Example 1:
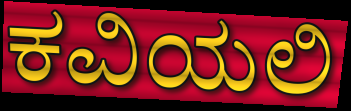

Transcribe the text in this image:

ಕವಿಯಲಿ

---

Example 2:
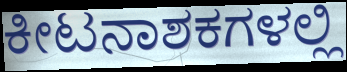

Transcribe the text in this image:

ಕೀಟನಾಶಕಗಳಲ್ಲಿ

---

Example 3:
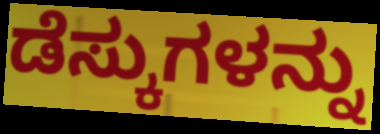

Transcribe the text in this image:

ಡೆಸ್ಕುಗಳನ್ನು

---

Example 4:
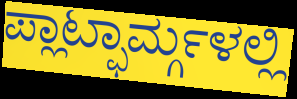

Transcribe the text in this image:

ಪ್ಲಾಟ್ಫಾರ್ಮ್ಗಳಲ್ಲಿ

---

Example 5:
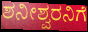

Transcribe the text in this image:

ಶನೀಶ್ವರನಿಗೆ